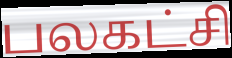
பலகட்சி